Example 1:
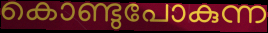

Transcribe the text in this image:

കൊണ്ടുപോകുന്ന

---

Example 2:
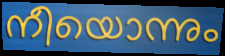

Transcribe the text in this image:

നീയൊന്നും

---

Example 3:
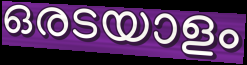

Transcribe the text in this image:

ഒരടയാളം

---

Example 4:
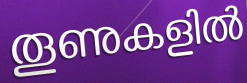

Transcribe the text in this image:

തൂണുകളിൽ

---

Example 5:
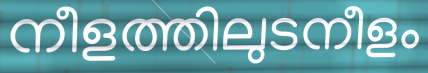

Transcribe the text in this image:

നീളത്തിലുടനീളം